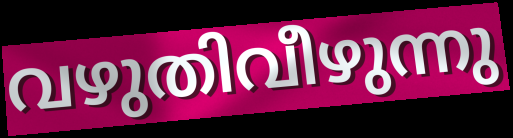
വഴുതിവീഴുന്നു